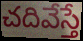
చదివేస్తే